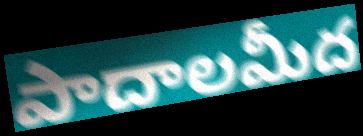
పాదాలమీద